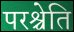
परश्चेति